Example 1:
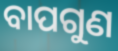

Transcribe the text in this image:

ବାପଗୁଣ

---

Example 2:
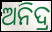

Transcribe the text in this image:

ଅନିଦ୍ର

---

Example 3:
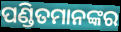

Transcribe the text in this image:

ପଣ୍ଡିତମାନଙ୍କର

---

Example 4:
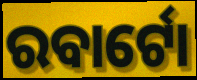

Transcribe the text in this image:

ରବାର୍ଟୋ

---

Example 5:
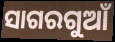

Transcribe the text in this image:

ସାଗରଗୁଆଁ